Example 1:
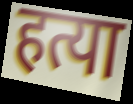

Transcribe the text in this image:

हत्या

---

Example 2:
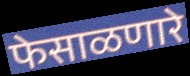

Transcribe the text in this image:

फेसाळणारे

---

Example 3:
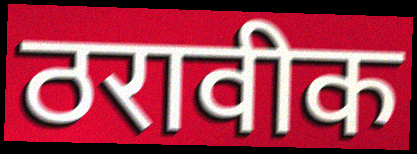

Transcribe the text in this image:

ठरावीक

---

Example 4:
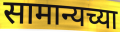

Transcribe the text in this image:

सामान्यच्या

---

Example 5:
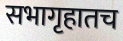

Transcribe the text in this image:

सभागृहातच